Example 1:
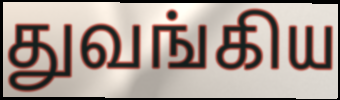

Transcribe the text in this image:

துவங்கிய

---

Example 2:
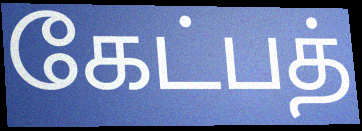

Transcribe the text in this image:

கேட்பத்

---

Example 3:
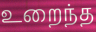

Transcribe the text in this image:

உறைந்த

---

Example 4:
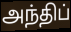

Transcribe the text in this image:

அந்திப்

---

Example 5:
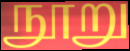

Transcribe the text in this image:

நூறு